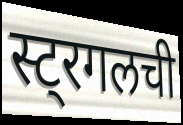
स्ट्रगलची